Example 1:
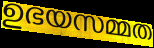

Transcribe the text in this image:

ഉഭയസമ്മത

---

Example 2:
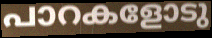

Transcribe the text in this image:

പാറകളോടു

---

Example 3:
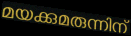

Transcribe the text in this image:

മയക്കുമരുന്നിന്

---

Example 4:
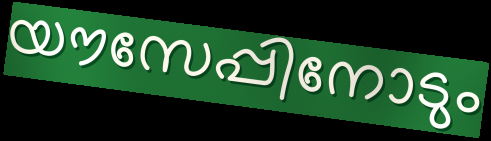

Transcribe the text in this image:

യൗസേപ്പിനോടും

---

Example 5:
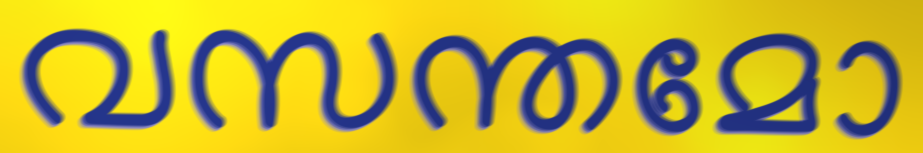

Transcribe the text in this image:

വസന്തമോ